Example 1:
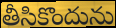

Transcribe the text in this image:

తీసికొందును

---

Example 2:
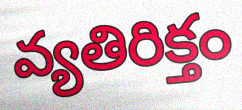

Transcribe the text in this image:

వ్యతిరిక్తం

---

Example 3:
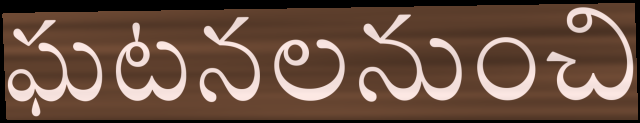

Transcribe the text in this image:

ఘటనలనుంచి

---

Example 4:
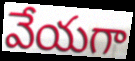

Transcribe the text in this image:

వేయగా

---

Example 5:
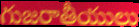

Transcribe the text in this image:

గుజరాతీయులు